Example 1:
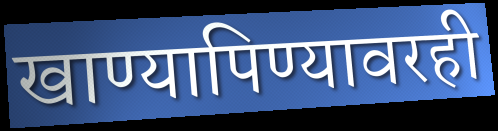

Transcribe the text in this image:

खाण्यापिण्यावरही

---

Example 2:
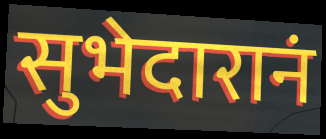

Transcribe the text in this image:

सुभेदारानं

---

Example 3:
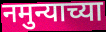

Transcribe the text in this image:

नमुन्याच्या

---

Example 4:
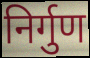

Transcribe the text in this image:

निर्गुण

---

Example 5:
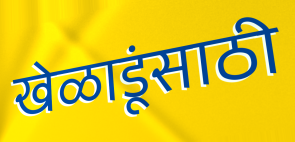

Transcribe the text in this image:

खेळाडूंसाठी